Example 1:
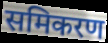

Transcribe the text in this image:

समिकरण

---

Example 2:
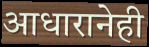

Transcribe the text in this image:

आधारानेही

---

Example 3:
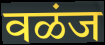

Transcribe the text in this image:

वळंज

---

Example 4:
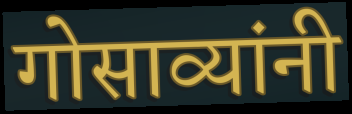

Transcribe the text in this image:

गोसाव्यांनी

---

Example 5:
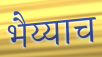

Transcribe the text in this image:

भैय्याच